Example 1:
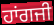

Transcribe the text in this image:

ਹਾਂਗਜੀ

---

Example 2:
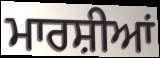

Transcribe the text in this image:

ਮਾਰਸ਼ੀਆਂ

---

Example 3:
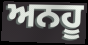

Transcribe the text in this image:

ਅਨਹੂ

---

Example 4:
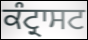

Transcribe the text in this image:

ਕੰਟ੍ਰਾਸਟ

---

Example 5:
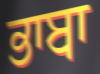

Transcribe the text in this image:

ਭਾਬਾ